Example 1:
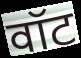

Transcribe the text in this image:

वॉट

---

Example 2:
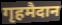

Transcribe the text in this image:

गृहमैदान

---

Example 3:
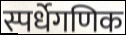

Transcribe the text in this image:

स्पर्धेगणिक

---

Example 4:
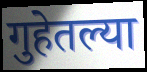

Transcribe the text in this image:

गुहेतल्या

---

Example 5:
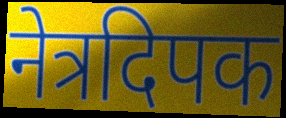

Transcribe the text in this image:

नेत्रदिपक